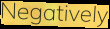
Negatively